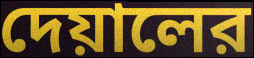
দেয়ালের